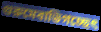
গুরুমেবাভিগচ্ছেৎ